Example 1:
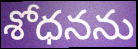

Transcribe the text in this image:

శోధనను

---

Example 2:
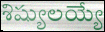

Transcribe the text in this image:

శిష్యులయ్యే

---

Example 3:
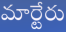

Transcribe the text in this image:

మార్టేరు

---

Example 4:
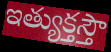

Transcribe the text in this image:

ఇత్యుక్తస్తౌ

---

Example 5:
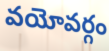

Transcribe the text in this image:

వయోవర్గం